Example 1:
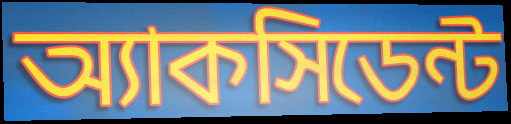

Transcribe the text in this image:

অ্যাকসিডেন্ট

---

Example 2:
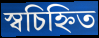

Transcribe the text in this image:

স্বচিহ্নিত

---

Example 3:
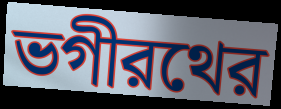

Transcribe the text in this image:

ভগীরথের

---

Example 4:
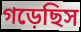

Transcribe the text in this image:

গড়েছিস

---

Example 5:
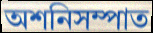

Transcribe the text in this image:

অশনিসম্পাত